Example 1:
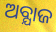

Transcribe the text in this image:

ଅବ୍ଯାଜ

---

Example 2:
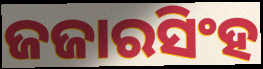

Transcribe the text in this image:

ଜଜାରସିଂହ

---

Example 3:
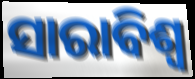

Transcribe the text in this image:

ସାରାବିଶ୍ବ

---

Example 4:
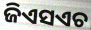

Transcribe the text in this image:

ଜିଏସଏଚ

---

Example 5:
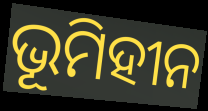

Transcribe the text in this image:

ଭୂମିହୀନ